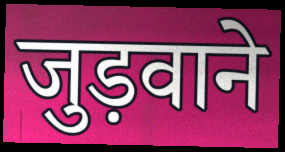
जुड़वाने